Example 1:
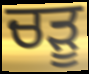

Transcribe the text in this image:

ਚੜੂ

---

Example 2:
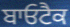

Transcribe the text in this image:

ਬਾਓਟੈਕ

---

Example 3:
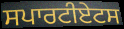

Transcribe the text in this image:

ਸਪਾਰਟੀਏਟਸ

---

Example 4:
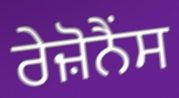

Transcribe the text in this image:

ਰੇਜ਼ੋਨੈਂਸ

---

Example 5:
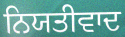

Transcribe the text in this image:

ਨਿਯਤੀਵਾਦ